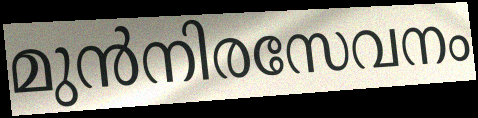
മുൻനിരസേവനം